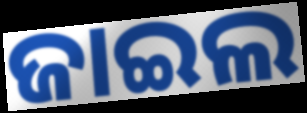
ଜାଇଲ